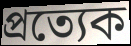
প্রত্যেক